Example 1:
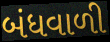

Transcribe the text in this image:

બંધવાળી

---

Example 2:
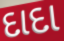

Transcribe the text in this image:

દાદા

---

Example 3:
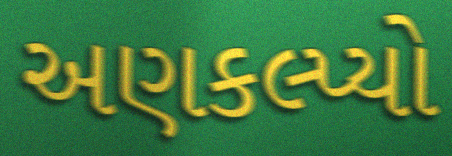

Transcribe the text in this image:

અણકલ્પ્યો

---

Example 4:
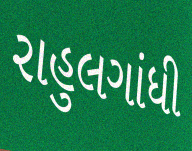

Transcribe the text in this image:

રાહુલગાંધી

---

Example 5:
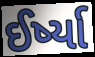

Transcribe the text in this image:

ઈર્ષ્યા